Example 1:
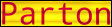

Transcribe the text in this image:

Parton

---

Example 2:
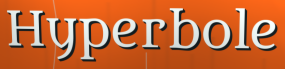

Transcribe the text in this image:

Hyperbole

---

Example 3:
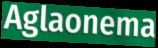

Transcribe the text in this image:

Aglaonema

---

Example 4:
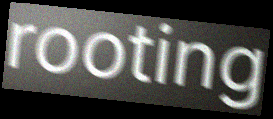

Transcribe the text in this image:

rooting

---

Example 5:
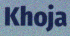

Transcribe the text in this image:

Khoja